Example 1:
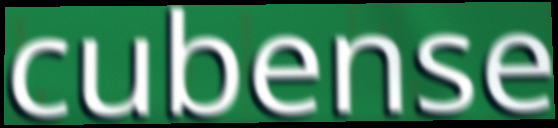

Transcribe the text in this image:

cubense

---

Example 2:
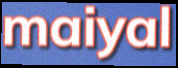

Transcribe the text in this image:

maiyal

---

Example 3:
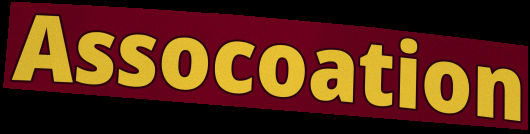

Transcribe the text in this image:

Assocoation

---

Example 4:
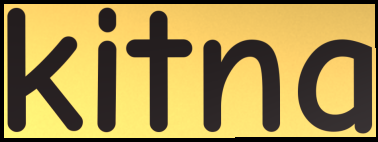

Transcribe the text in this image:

kitna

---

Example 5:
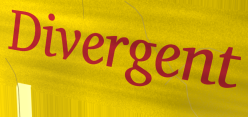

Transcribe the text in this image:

Divergent